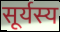
सूर्यस्य